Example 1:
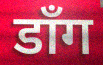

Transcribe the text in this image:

डाँग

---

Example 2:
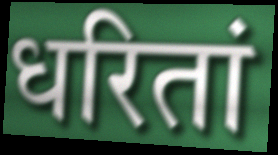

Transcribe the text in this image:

धरितां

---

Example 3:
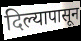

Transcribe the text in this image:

दिल्यापासून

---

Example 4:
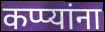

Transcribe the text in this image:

कप्प्यांना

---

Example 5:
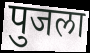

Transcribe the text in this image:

पुजला